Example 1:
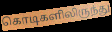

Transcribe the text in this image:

கொடிகளிலிருந்து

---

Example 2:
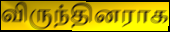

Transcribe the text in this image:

விருந்தினராக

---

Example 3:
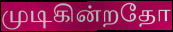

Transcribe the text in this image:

முடிகின்றதோ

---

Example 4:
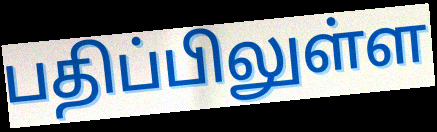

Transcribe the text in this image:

பதிப்பிலுள்ள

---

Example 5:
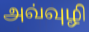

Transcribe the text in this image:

அவ்வுழி